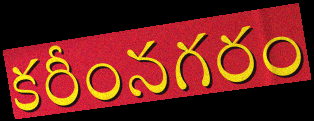
కరీంనగరం